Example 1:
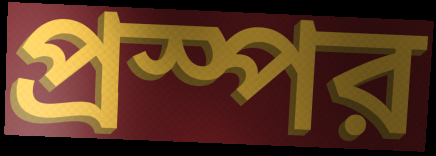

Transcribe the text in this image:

প্রস্পর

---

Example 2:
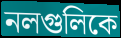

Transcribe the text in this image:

নলগুলিকে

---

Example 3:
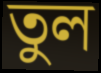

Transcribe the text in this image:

তুল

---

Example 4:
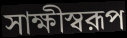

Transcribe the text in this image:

সাক্ষীস্বরূপ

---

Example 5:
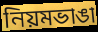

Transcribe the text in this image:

নিয়মভাঙা